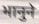
भानुने